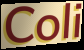
Coli